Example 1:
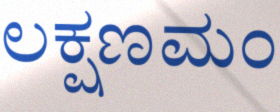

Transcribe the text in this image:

ಲಕ್ಷಣಮಂ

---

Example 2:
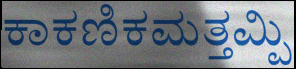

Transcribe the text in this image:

ಕಾಕಣಿಕಮತ್ತಮ್ಪಿ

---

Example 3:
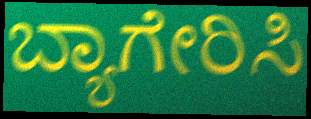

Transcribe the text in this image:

ಬ್ಯಾಗೇರಿಸಿ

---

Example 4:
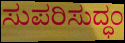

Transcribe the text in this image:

ಸುಪರಿಸುದ್ಧಂ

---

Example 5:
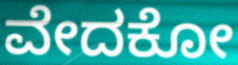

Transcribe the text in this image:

ವೇದಕೋ